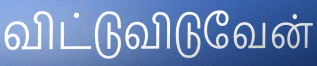
விட்டுவிடுவேன்